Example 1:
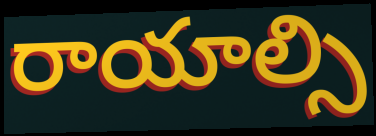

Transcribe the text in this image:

రాయాల్సి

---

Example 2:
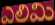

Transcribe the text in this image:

ఎలిమి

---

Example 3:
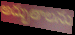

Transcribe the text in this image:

అద్భుతాలను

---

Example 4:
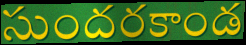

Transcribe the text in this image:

సుందరకాండ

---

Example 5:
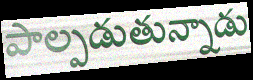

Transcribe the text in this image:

పాల్పడుతున్నాడు